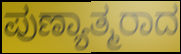
ಪುಣ್ಯಾತ್ಮರಾದ